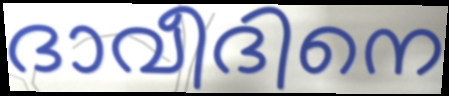
ദാവീദിനെ